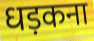
धड़कना